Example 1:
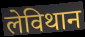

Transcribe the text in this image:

लेविथान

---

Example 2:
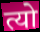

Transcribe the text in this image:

त्यो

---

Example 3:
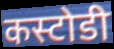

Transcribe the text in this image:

कस्टोडी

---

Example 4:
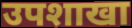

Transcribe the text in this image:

उपशाखा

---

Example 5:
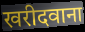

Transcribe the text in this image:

खरीदवाना